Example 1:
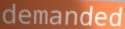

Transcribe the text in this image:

demanded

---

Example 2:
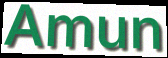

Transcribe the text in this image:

Amun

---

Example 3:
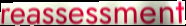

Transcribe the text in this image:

reassessment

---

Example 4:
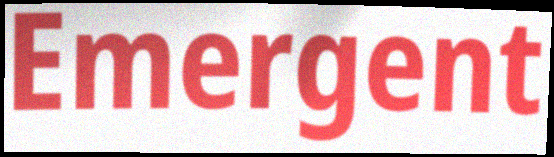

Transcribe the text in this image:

Emergent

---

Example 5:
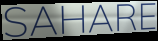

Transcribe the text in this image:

SAHARE